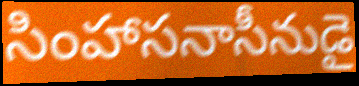
సింహాసనాసీనుడై